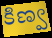
కిణ్వ